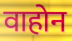
वाहोन